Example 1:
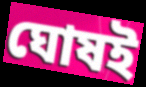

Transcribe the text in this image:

ঘোষই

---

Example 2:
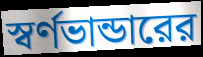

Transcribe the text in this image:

স্বর্ণভান্ডারের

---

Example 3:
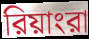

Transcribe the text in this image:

রিয়াংরা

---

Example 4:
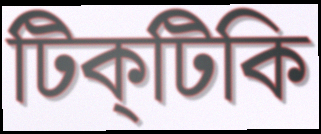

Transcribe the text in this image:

টিক্‌টিকি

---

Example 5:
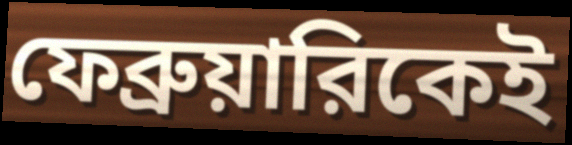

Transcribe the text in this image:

ফেব্রুয়ারিকেই